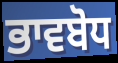
ਭਾਵਬੋਧ